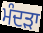
ਮੰਦੜਾ